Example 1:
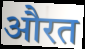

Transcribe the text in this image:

औरत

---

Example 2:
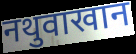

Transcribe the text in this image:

नथुवाखान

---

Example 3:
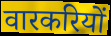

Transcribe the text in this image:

वारकरियों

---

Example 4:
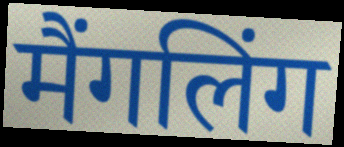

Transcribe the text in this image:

मैंगलिंग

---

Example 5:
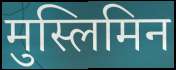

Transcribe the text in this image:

मुस्लिमिन